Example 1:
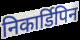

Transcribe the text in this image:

निकार्डिपिन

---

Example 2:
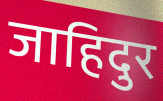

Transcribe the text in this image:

जाहिदुर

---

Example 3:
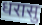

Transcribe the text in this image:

धरासु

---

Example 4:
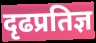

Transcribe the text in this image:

दृढप्रतिज्ञ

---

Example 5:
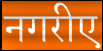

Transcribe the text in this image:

नगरीए